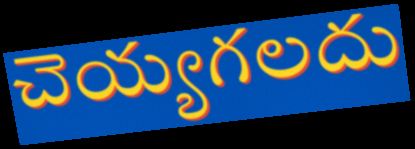
చెయ్యగలదు